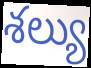
శల్యు